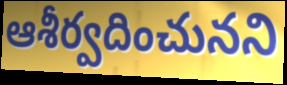
ఆశీర్వదించునని